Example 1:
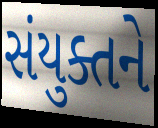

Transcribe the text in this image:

સંયુક્તને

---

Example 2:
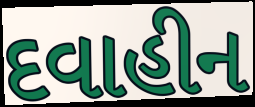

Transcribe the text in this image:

દવાહીન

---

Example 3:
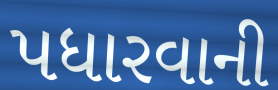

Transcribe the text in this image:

પધારવાની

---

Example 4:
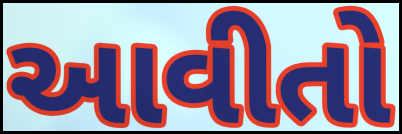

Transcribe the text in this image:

આવીતો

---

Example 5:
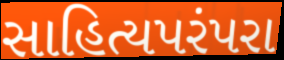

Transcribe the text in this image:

સાહિત્યપરંપરા